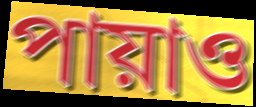
পায়াও